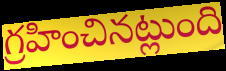
గ్రహించినట్లుంది